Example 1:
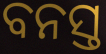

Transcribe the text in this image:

ବନସ୍ତ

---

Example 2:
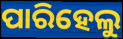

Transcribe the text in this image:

ପାରିହେଲୁ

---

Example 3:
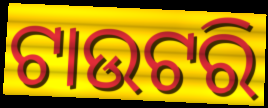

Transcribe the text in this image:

ଟାଉଟରି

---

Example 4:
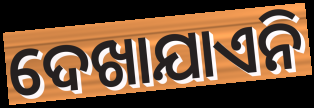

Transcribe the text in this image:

ଦେଖାଯାଏନି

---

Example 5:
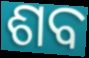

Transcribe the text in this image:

ଶବ